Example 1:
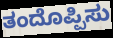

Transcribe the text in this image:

ತಂದೊಪ್ಪಿಸು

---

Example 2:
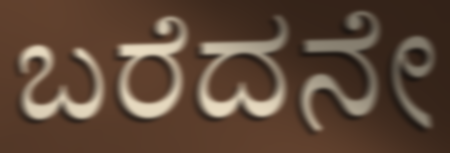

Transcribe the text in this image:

ಬರೆದನೇ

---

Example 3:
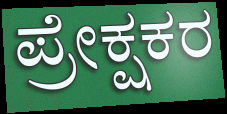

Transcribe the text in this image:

ಪ್ರೇಕ್ಷಕರ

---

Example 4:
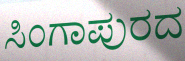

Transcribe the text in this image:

ಸಿಂಗಾಪುರದ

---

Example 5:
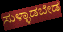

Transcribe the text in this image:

ಸುಳ್ಳಾಡಬೇಡ